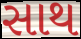
સાથ